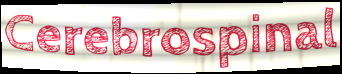
Cerebrospinal